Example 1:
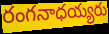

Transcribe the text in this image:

రంగనాధయ్యరు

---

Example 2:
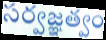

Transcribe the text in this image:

సర్వజ్ఞత్వం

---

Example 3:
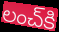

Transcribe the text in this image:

లంచ్‌కి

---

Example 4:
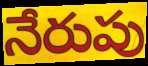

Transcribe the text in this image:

నేరుపు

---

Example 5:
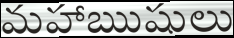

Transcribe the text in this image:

మహాఋషులు